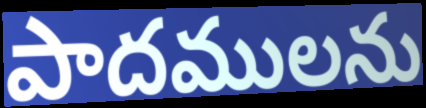
పాదములను